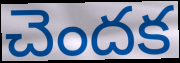
చెందక